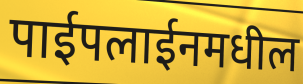
पाईपलाईनमधील